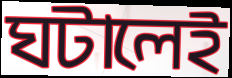
ঘটালেই